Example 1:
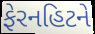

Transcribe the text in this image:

ફેરનહિટને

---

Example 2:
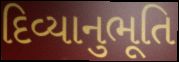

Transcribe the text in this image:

દિવ્યાનુભૂતિ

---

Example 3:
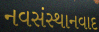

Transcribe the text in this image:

નવસંસ્થાનવાદ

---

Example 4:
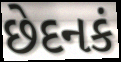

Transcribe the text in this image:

છેદનકં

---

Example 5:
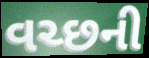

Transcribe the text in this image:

વચ્છની